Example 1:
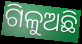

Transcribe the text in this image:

ଗିଳୁଅଛି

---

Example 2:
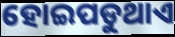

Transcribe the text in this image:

ହୋଇପଡୁଥାଏ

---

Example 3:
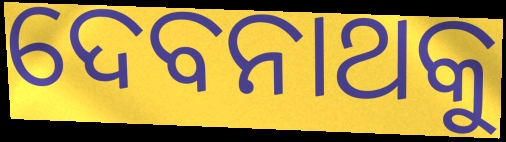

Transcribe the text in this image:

ଦେବନାଥକୁ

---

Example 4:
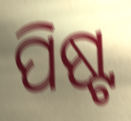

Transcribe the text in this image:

ପିଷ୍ଟ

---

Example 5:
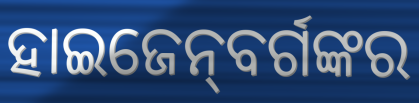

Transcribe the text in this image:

ହାଇଜେନ୍‌ବର୍ଗଙ୍କର